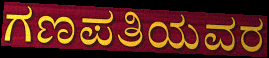
ಗಣಪತಿಯವರ